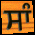
ਸਾੰ